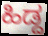
ಹಿಡ್ದ